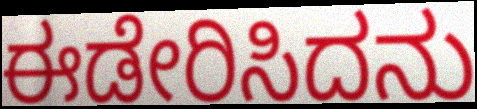
ಈಡೇರಿಸಿದನು